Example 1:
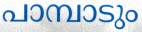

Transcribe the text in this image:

പാമ്പാടും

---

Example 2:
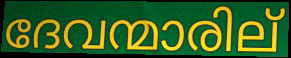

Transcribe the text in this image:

ദേവന്മാരില്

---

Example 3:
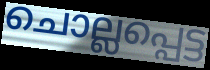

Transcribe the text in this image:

ചൊല്ലപ്പെട്ട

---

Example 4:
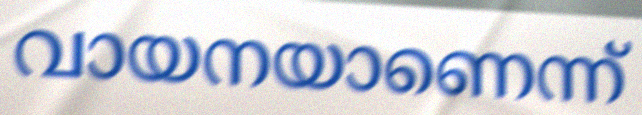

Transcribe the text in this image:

വായനയാണെന്ന്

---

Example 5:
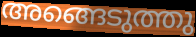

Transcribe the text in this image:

അങ്ങെടുത്തു